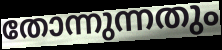
തോന്നുന്നതും